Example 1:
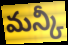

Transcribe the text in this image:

మన్కీ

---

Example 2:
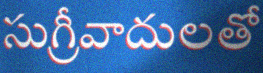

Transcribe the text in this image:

సుగ్రీవాదులతో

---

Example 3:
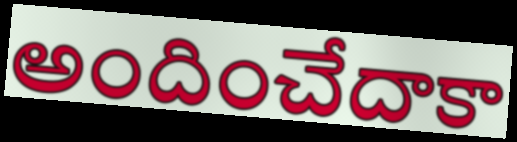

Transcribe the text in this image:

అందించేదాకా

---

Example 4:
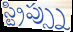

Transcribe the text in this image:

స్ట్రిప్స్ను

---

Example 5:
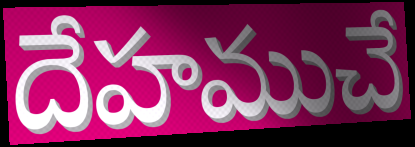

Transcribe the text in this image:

దేహముచే